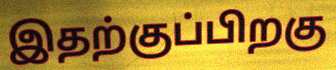
இதற்குப்பிறகு